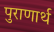
पुराणार्थ